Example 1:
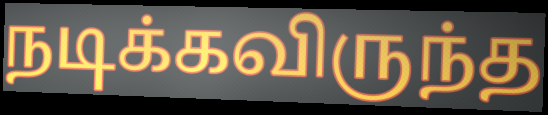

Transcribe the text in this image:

நடிக்கவிருந்த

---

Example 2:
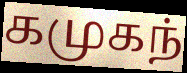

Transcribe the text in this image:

கமுகந்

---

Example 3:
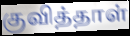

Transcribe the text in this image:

குவித்தாள்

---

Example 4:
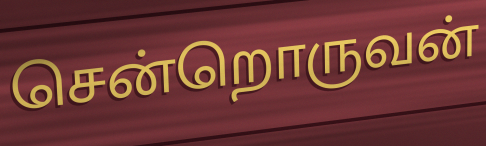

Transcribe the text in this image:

சென்றொருவன்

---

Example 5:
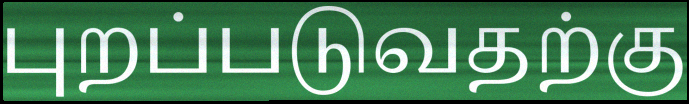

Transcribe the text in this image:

புறப்படுவதற்கு